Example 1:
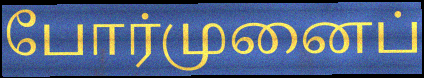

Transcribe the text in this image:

போர்முனைப்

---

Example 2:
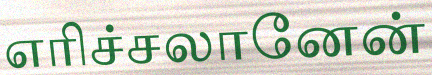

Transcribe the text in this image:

எரிச்சலானேன்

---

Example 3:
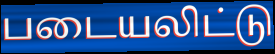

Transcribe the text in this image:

படையலிட்டு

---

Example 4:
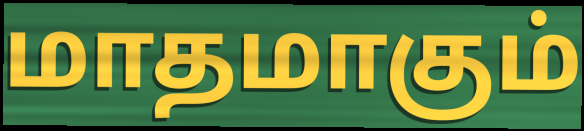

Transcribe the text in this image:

மாதமாகும்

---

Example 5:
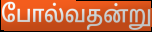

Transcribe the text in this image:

போல்வதன்று